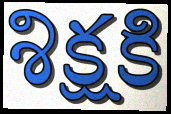
శిక్షకి